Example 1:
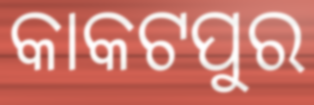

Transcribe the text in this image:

କାକଟପୁର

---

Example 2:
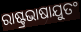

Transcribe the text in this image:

ରାଷ୍ଟ୍ରଭାଷାଯୁତଂ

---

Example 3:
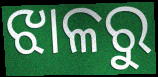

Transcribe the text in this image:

ଝାଳରୁ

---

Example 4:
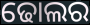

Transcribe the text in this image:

ଢୋଲର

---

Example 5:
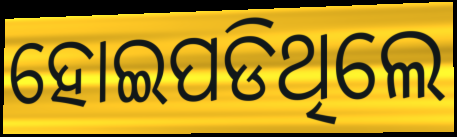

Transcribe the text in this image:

ହୋଇପଡିଥିଲେ